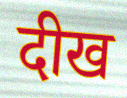
दीख